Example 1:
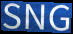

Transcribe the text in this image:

SNG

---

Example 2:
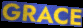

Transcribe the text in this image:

GRACE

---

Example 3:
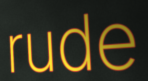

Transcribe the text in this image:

rude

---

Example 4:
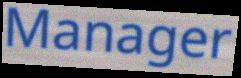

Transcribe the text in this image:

Manager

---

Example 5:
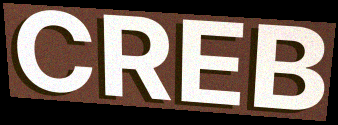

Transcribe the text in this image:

CREB